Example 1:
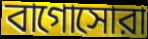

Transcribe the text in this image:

বাগোসোরা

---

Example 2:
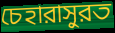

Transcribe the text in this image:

চেহারাসুরত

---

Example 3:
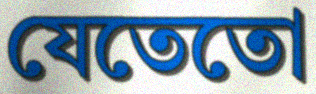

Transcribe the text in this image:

যেতেতো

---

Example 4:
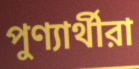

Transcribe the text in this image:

পুণ্যার্থীরা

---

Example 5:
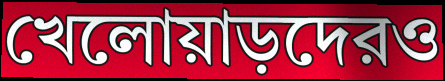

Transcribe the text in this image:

খেলোয়াড়দেরও